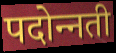
पदोन्‍नती